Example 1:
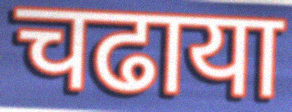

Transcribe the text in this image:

चढाया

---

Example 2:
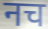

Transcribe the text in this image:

नच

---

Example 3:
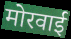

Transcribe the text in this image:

मोरवाई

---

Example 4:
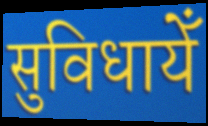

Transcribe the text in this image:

सुविधायेँ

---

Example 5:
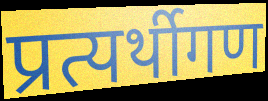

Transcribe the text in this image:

प्रत्यर्थीगण